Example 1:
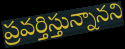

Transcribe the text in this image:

ప్రవర్తిస్తున్నానని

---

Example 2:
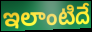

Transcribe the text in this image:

ఇలాంటిదే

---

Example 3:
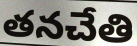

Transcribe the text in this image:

తనచేతి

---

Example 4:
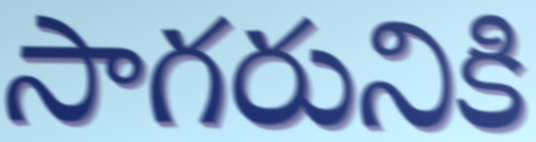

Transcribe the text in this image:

సాగరునికి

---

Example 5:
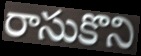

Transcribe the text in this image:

రాసుకొని